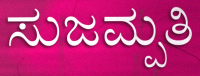
ಸುಜಮ್ಪತಿ